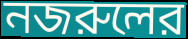
নজরুলের